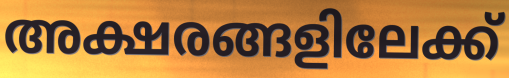
അക്ഷരങ്ങളിലേക്ക്